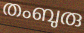
തംബുരു